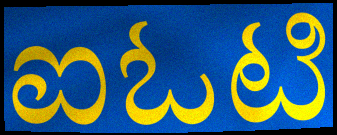
ಐಓಟಿ